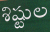
శిష్టుల